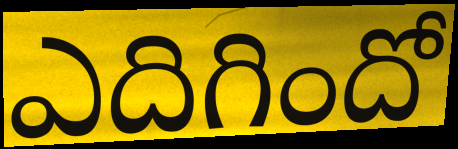
ఎదిగిందో